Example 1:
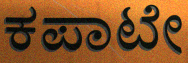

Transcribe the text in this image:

ಕಪಾಟೇ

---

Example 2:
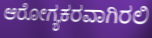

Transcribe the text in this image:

ಆರೋಗ್ಯಕರವಾಗಿರಲಿ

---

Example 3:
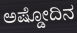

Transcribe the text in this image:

ಅಷ್ಡೋದಿನ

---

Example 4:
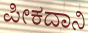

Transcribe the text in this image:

ಪೀಕದಾನಿ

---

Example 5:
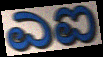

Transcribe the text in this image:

ಎಐ